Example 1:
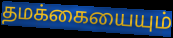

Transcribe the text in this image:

தமக்கையையும்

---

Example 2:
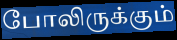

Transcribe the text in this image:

போலிருக்கும்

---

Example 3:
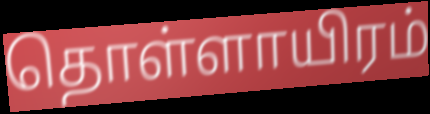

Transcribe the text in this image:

தொள்ளாயிரம்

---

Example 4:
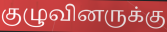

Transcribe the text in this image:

குழுவினருக்கு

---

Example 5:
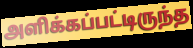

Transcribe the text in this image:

அளிக்கப்பட்டிருந்த